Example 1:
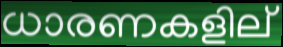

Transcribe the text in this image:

ധാരണകളില്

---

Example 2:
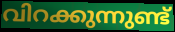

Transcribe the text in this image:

വിറക്കുന്നുണ്ട്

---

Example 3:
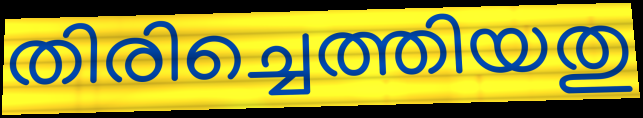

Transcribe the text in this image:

തിരിച്ചെത്തിയതു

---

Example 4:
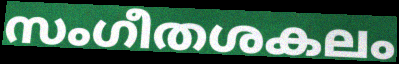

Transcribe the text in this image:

സംഗീതശകലം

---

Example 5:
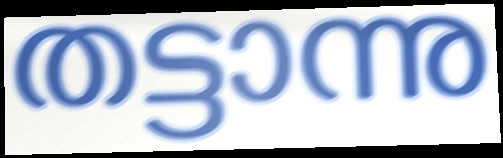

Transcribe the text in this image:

തട്ടാന്നു